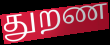
துறண